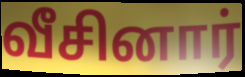
வீசினார்